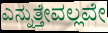
ಎನ್ನುತ್ತೇವಲ್ಲವೇ